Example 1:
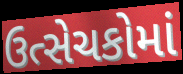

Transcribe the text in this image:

ઉત્સેચકોમાં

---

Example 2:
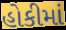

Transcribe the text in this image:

હોકીમાં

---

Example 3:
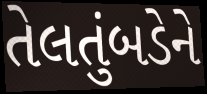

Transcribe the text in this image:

તેલતુંબડેને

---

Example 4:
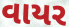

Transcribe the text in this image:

વાયર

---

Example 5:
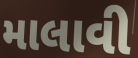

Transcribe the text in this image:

માલાવી